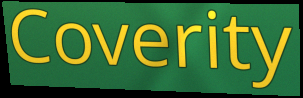
Coverity